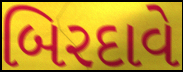
બિરદાવે